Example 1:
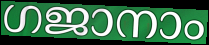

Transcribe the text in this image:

ഗജാനാം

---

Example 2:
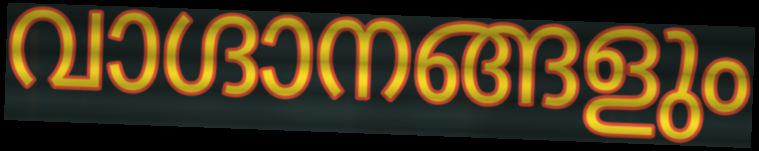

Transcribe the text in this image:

വാഗ്ദാനങ്ങളും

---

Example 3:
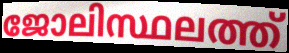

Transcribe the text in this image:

ജോലിസ്ഥലത്ത്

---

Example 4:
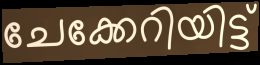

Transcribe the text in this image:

ചേക്കേറിയിട്ട്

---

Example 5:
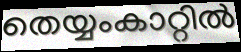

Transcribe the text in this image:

തെയ്യംകാറ്റിൽ